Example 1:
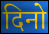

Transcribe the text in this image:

दिनो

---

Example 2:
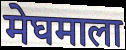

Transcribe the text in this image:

मेघमाला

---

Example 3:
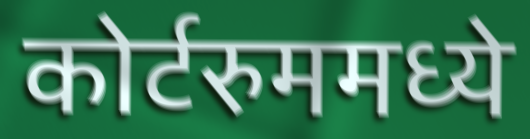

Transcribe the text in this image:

कोर्टरुममध्ये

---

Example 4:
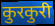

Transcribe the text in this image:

कुरकुरी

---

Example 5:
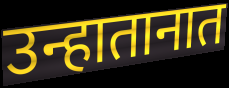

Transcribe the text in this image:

उन्हातानात